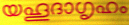
യഹൂദാഗൃഹം